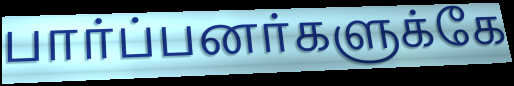
பார்ப்பனர்களுக்கே